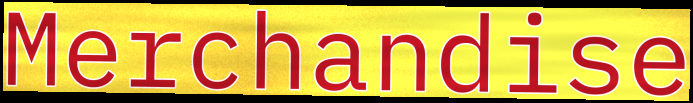
Merchandise